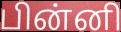
பின்னி